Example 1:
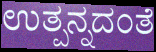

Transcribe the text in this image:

ಉತ್ಪನ್ನದಂತೆ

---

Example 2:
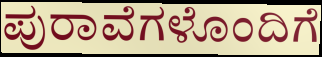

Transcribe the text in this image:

ಪುರಾವೆಗಳೊಂದಿಗೆ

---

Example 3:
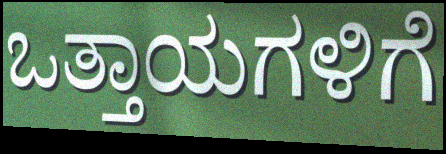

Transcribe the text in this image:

ಒತ್ತಾಯಗಳಿಗೆ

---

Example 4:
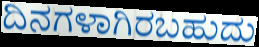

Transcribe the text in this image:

ದಿನಗಳಾಗಿರಬಹುದು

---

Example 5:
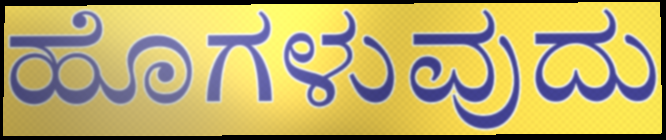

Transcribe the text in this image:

ಹೊಗಳುವುದು